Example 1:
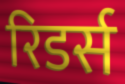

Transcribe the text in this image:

रिडर्स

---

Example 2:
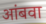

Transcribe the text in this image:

आंबवा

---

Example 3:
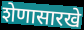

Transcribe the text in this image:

शेणासारखे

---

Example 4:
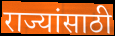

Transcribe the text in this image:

राज्यांसाठी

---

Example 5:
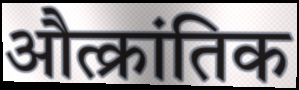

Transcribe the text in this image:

औत्क्रांतिक